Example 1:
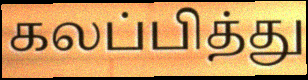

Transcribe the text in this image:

கலப்பித்து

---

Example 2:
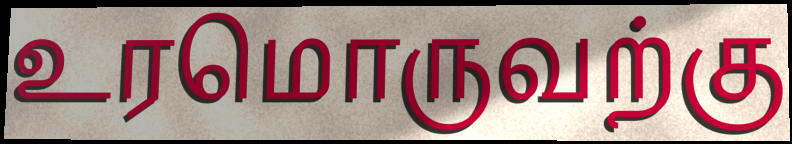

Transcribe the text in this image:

உரமொருவற்கு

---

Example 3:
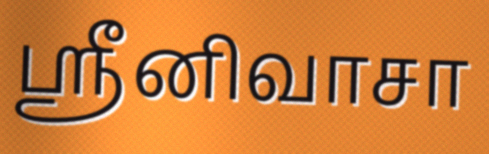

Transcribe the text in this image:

ஸ்ரீனிவாசா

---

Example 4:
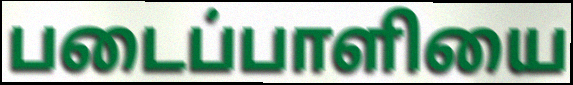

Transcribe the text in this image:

படைப்பாளியை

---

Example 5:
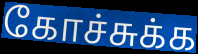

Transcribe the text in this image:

கோச்சுக்க